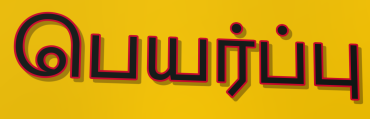
பெயர்ப்பு